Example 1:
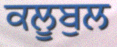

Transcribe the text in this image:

ਕਲੂਬੁਲ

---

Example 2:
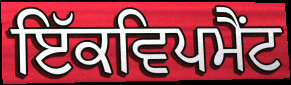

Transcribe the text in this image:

ਇੱਕਵਿਪਮੈਂਟ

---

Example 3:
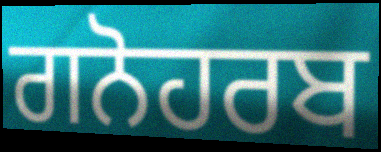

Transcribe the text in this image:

ਗਨੋਹਰਬ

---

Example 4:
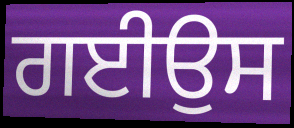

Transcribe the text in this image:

ਗਈਉਸ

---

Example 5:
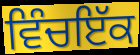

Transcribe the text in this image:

ਵਿੰਚਇੱਕ